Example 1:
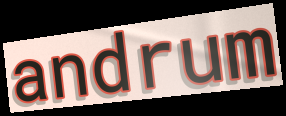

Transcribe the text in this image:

andrum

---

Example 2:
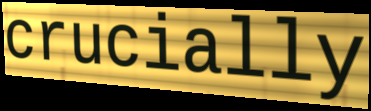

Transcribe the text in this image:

crucially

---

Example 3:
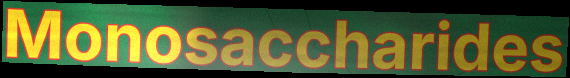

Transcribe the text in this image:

Monosaccharides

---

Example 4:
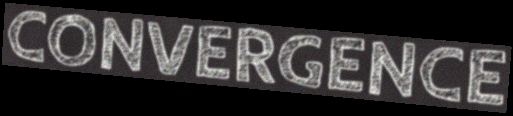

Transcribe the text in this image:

CONVERGENCE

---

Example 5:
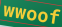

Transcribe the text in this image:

wwoof